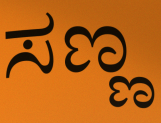
ಸಣ್ಣ